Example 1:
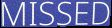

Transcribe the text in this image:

MISSED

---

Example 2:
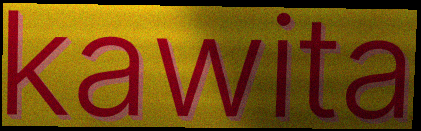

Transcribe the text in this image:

kawita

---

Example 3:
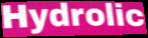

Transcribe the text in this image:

Hydrolic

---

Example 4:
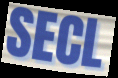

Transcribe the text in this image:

SECL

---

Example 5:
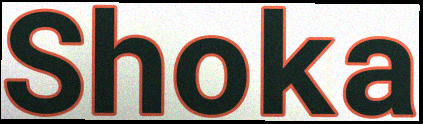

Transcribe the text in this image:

Shoka